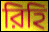
রিহি